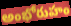
అంభోరుహం